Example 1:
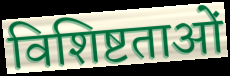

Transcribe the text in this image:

विशिष्टताओं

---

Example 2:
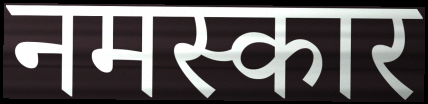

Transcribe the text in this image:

नमस्कार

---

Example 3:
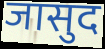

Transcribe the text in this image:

जासुद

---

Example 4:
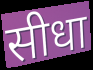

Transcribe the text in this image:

सीधा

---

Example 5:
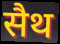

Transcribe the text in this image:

सैथ